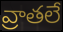
వ్రాతలే